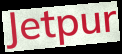
Jetpur